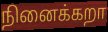
நினைக்கறா